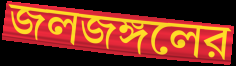
জলজঙ্গলের